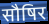
सौषिर